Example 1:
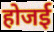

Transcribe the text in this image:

होजई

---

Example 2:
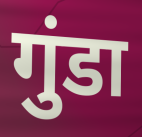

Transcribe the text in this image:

गुंडा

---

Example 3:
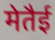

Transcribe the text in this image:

मेतैई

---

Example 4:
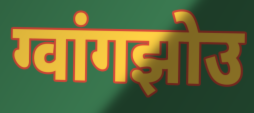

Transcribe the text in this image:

ग्वांगझोउ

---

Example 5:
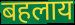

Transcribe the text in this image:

बहलाय